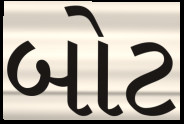
બોટ